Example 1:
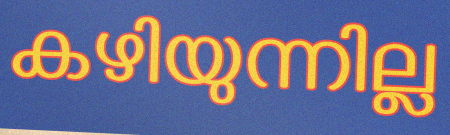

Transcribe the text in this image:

കഴിയുന്നില്ല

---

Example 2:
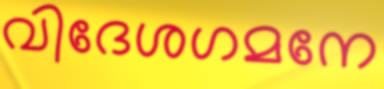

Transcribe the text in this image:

വിദേശഗമനേ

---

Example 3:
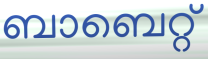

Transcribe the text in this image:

ബാബെറ്റ്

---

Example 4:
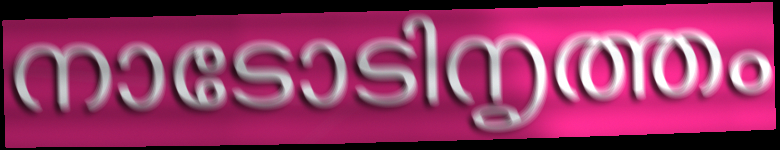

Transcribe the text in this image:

നാടോടിനൃത്തം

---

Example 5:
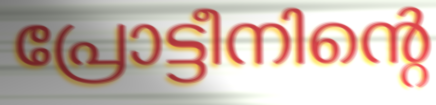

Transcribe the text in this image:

പ്രോട്ടീനിന്റെ